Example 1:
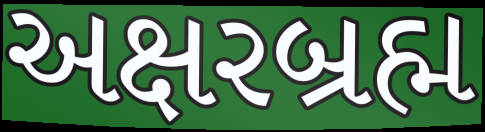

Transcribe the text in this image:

અક્ષરબ્રહ્મ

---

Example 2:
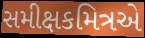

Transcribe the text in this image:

સમીક્ષકમિત્રએ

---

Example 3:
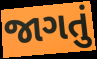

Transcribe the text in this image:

જાગતું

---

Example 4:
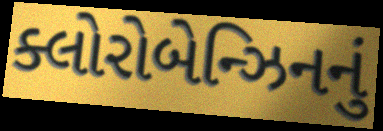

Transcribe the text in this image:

ક્લોરોબેન્ઝિનનું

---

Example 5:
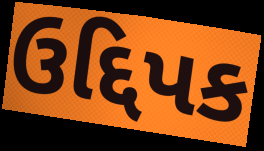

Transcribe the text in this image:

ઉદ્દિપક